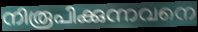
നിരൂപിക്കുന്നവനെ